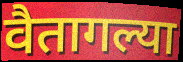
वैतागल्या